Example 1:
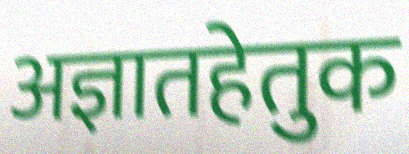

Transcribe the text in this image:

अज्ञातहेतुक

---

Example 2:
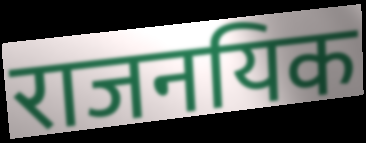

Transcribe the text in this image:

राजनयिक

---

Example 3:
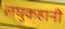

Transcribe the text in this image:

लघुकहानी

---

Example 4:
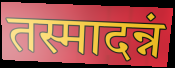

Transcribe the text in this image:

तस्मादन्नं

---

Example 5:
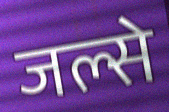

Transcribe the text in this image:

जल्से